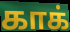
காக்